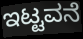
ಇಟ್ಟವನೆ